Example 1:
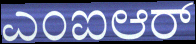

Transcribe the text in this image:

ಎಂಐಆರ್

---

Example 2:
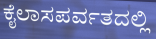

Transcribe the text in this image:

ಕೈಲಾಸಪರ್ವತದಲ್ಲಿ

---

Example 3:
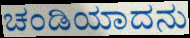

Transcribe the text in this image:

ಚಂಡಿಯಾದನು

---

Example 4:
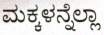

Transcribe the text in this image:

ಮಕ್ಕಳನ್ನೆಲ್ಲಾ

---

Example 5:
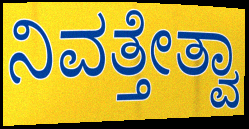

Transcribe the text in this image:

ನಿವತ್ತೇತ್ವಾ